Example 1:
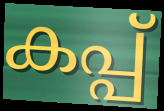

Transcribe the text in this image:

കപ്പ്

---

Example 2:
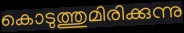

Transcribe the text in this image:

കൊടുത്തുമിരിക്കുന്നു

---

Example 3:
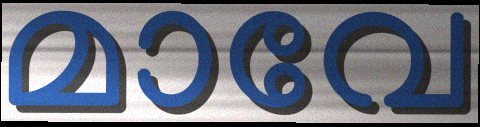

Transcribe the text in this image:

മാവേ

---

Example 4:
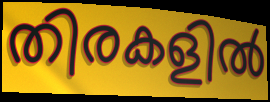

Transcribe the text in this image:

തിരകളിൽ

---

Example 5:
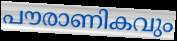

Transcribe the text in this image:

പൗരാണികവും